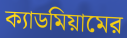
ক্যাডমিয়ামের